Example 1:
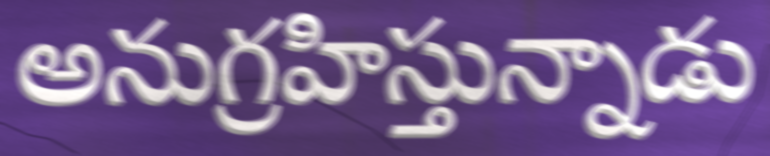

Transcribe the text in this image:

అనుగ్రహిస్తున్నాడు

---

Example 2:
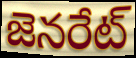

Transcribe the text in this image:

జెనరేట్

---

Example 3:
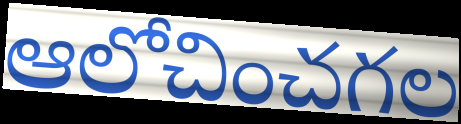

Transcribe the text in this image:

ఆలోచించగల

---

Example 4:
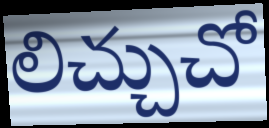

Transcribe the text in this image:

లిచ్చుచో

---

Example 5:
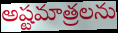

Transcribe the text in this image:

అష్టమాత్రలను